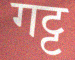
गट्ट